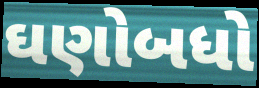
ઘણોબધો